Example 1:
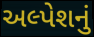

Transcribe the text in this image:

અલ્પેશનું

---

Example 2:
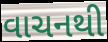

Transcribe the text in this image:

વાચનથી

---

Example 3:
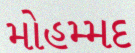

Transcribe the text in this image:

મોહમ્મદ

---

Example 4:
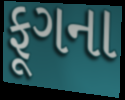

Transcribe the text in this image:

ફૂગના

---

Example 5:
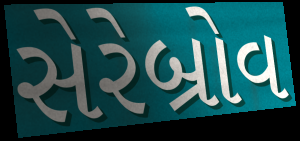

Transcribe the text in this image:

સેરેબ્રોવ